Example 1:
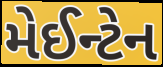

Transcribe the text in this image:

મેઈન્ટેન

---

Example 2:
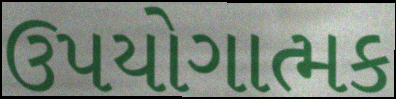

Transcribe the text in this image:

ઉપયોગાત્મક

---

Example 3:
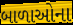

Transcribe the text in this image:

બાળાઓના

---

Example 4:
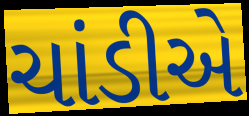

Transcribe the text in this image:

ચાંડીએ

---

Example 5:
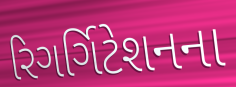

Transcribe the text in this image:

રિગર્ગિટેશનના